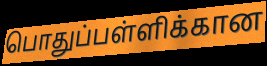
பொதுப்பள்ளிக்கான